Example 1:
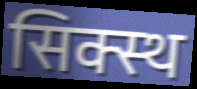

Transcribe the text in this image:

सिक्स्थ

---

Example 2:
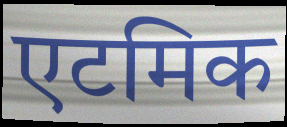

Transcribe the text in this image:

एटमिक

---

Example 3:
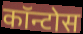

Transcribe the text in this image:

कॉन्टोस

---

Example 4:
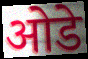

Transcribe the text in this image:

ओडे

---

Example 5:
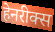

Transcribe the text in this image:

हेनरीक्स